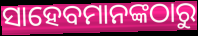
ସାହେବମାନଙ୍କଠାରୁ